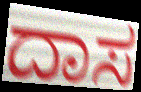
ದಾಸ